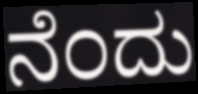
ನೆಂದು